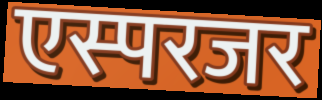
एस्परजर